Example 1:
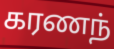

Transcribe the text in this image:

கரணந்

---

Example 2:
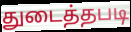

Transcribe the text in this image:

துடைத்தபடி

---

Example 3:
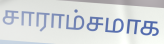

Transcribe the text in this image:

சாராம்சமாக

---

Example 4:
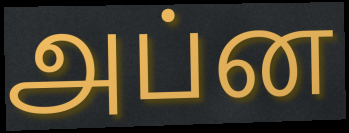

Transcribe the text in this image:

அப்ன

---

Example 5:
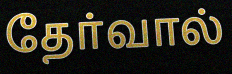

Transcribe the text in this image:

தேர்வால்